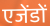
एजेंडों